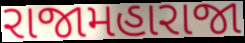
રાજામહારાજા